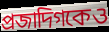
প্রজাদিগকেও